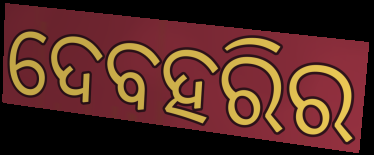
ଦେବହରିର